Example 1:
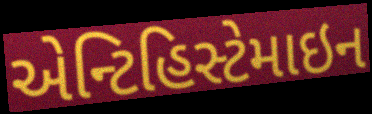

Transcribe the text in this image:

એન્ટિહિસ્ટેમાઇન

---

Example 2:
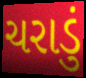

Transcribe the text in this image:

ચરાડું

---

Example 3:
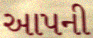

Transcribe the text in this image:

આપની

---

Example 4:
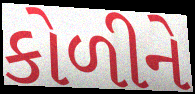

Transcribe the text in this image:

કોળીને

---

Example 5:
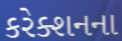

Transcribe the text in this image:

કરેક્શનના